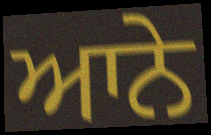
ਆਨੇ